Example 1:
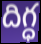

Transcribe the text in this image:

దిగ్ధ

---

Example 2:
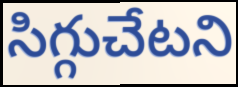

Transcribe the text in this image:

సిగ్గుచేటని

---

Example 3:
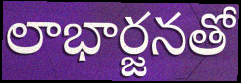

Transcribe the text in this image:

లాభార్జనతో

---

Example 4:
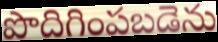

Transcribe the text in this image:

పొదిగింపబడెను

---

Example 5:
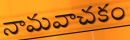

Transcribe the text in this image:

నామవాచకం